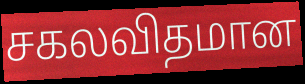
சகலவிதமான